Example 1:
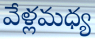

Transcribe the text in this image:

వేళ్లమధ్య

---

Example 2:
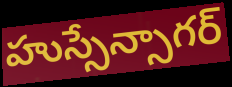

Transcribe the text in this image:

హుస్సేన్సాగర్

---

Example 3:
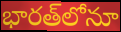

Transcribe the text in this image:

భారత్‌లోనూ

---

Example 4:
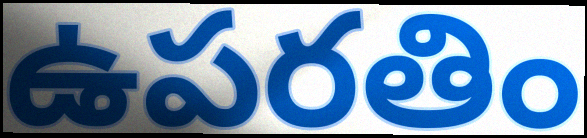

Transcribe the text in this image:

ఉపరతిం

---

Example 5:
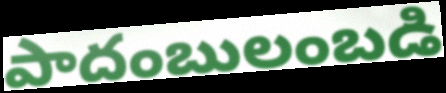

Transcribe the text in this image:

పాదంబులంబడి